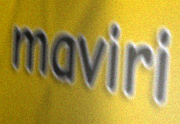
maviri